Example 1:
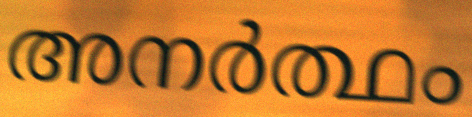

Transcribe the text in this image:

അനർത്ഥം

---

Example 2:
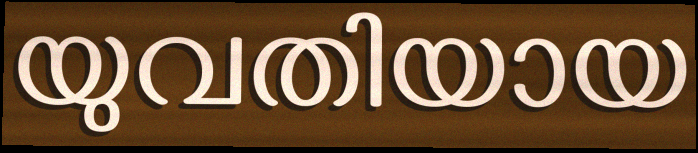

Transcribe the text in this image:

യുവതിയായ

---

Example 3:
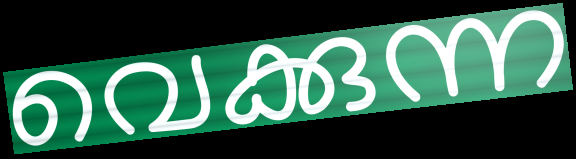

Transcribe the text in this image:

വെക്കുന്ന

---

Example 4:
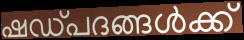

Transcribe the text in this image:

ഷഡ്പദങ്ങൾക്ക്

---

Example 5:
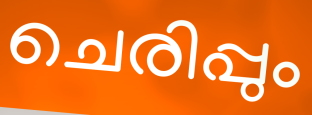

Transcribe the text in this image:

ചെരിപ്പും